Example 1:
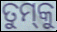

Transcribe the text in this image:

ତୁମ୍‌କୁ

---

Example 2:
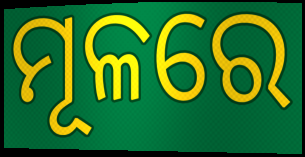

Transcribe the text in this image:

ମୂଳରେ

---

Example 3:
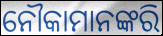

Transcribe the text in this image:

ନୌକାମାନଙ୍କରି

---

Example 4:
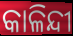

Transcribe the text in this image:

କାଳିନ୍ଦୀ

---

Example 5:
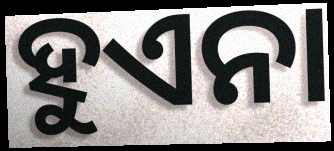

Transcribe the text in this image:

ହୁଏନା